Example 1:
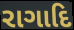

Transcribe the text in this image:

રાગાદિ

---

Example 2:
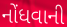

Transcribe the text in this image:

નોંધવાની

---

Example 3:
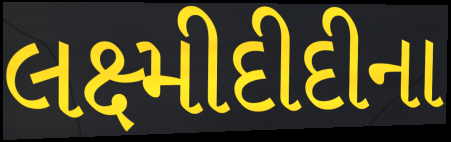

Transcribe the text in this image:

લક્ષ્મીદીદીના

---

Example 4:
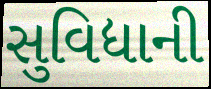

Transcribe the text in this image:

સુવિદ્યાની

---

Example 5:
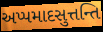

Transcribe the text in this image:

અપ્પમાદસુત્તન્તિ